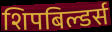
शिपबिल्डर्स